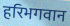
हरिभगवान